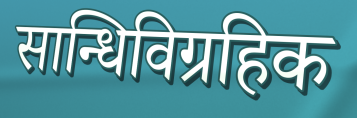
सान्धिविग्रहिक